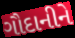
ગૌદાનીને